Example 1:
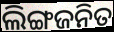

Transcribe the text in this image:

ଲିଙ୍ଗଜନିତ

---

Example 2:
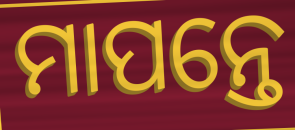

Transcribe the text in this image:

ମାପନ୍ତେ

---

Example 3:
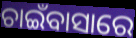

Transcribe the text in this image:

ଚାଇଁବାସାରେ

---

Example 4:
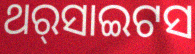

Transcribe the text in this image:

ଥର୍‌ସାଇଟସ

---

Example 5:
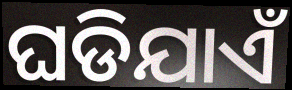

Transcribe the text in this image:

ଘଡିଯାଏଁ